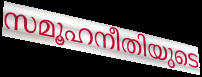
സമൂഹനീതിയുടെ